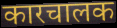
कारचालक